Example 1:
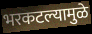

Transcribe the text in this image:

भरकटल्यामुळे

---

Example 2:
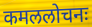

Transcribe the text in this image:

कमललोचनः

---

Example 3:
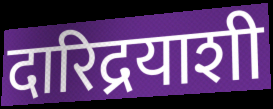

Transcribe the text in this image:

दारिद्रयाशी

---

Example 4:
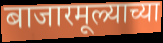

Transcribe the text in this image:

बाजारमूल्याच्या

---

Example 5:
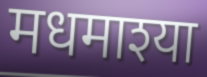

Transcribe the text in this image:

मधमाश्या